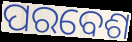
ପରବେଶ